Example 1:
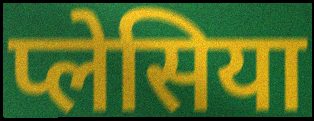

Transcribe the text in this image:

प्लेसिया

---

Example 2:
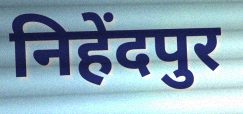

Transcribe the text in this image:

निहेंदपुर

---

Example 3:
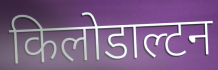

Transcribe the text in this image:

किलोडाल्टन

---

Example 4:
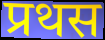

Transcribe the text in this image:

प्रथस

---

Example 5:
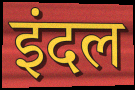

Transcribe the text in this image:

इंदल